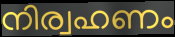
നിര്വഹണം